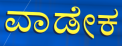
ವಾಡೇಕ